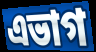
এভাগ